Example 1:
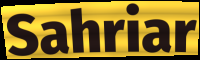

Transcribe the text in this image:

Sahriar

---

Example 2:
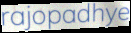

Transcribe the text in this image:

rajopadhye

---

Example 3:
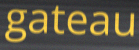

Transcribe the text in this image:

gateau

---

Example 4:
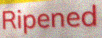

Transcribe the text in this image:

Ripened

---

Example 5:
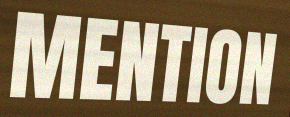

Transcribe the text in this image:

MENTION